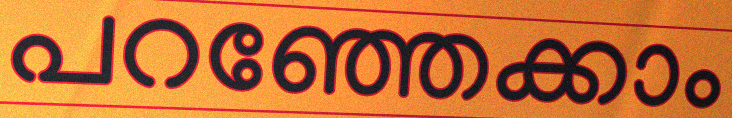
പറഞ്ഞേക്കാം